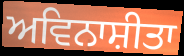
ਅਵਿਨਾਸ਼ੀਤਾ